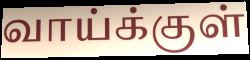
வாய்க்குள்